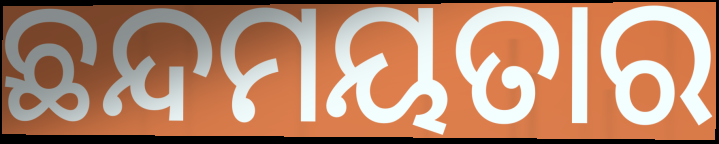
ଛନ୍ଦମୟତାର